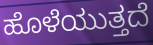
ಹೊಳೆಯುತ್ತದೆ